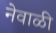
नेवाळी